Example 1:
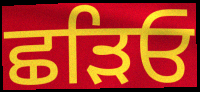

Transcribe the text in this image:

ਛੜਿਓ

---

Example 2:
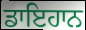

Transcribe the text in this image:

ਡਾਇਹਾਨ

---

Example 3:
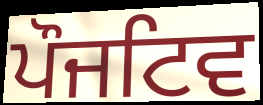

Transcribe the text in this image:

ਪੌਜਟਿਵ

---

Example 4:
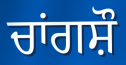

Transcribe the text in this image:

ਚਾਂਗਸ਼ੌ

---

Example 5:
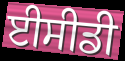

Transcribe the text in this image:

ਈਸੀਡੀ